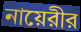
নায়েরীর